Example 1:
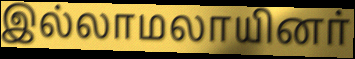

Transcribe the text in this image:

இல்லாமலாயினர்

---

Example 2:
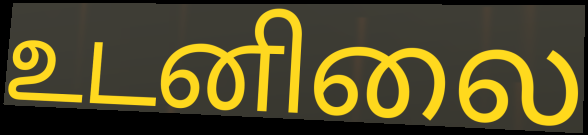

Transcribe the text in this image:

உடனிலை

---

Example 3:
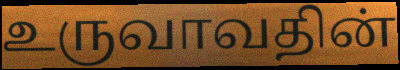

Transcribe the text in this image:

உருவாவதின்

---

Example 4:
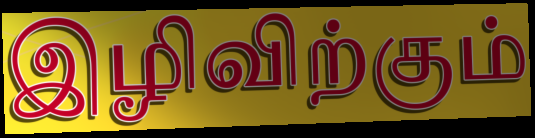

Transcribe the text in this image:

இழிவிற்கும்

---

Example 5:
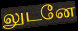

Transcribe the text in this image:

லுடனே